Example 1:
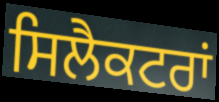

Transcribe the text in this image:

ਸਿਲੈਕਟਰਾਂ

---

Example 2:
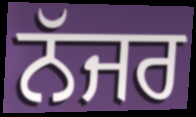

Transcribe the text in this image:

ਨੱਜਰ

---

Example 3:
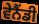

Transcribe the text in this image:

ਵੇਨੈਂਡੀ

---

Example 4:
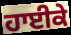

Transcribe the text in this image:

ਹਾਈਕੇ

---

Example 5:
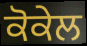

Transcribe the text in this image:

ਕੋਕੇਲ